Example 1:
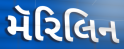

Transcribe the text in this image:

મૅરિલિન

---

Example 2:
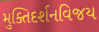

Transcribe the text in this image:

મુક્તિદર્શનવિજય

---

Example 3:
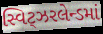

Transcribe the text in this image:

સ્વિટ્ઝરલેન્ડમાં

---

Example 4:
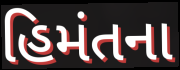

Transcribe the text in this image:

હિમંતના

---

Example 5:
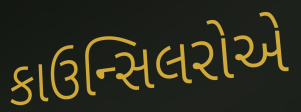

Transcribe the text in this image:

કાઉન્સિલરોએ